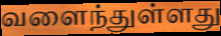
வளைந்துள்ளது